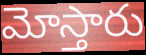
మోస్తారు